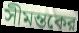
সীমন্তকের